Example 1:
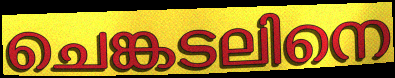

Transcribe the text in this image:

ചെങ്കടലിനെ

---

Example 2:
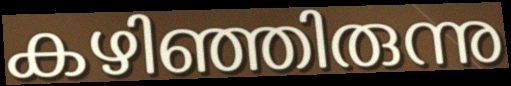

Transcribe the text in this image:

കഴിഞ്ഞിരുന്നു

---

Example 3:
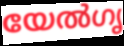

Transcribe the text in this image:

യേൽഗൃ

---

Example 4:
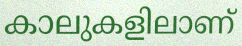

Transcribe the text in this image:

കാലുകളിലാണ്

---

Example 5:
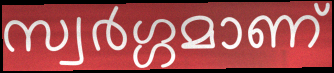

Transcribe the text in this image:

സ്വർഗ്ഗമാണ്